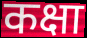
कक्षा